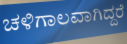
ಚಳಿಗಾಲವಾಗಿದ್ದರೆ